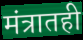
मंत्रातही